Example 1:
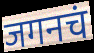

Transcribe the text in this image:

जगनचं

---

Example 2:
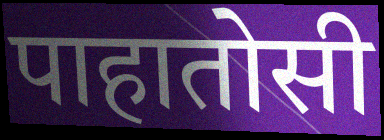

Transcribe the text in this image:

पाहातोसी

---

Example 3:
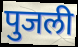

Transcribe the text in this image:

पुजली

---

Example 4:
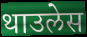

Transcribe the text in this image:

थाउलेस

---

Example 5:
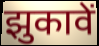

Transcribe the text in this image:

झुकावें